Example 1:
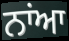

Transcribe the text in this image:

ਨਾਂਆ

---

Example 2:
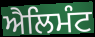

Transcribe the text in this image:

ਐਲਿਮੰਟ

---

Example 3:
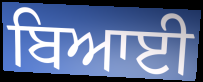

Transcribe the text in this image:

ਬਿਆਈ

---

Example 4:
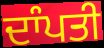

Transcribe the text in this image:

ਦਾੰਪਤੀ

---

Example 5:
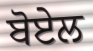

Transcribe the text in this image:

ਬੋਏਲ